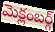
మెక్లంబర్గ్